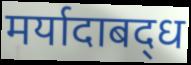
मर्यादाबद्ध